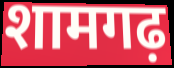
शामगढ़